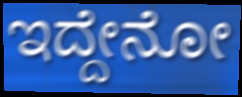
ಇದ್ದೇನೋ